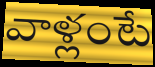
వాళ్లంటే